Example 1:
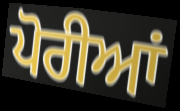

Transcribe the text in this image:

ਪੋਰੀਆਂ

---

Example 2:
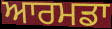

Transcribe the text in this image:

ਆਰਮਡਾ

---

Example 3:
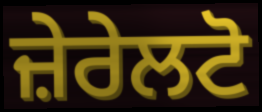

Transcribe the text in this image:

ਜ਼ੇਰੇਲਟੋ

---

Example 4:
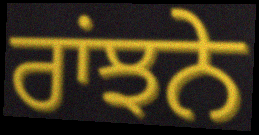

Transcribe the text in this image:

ਰਾਂਝਨੇ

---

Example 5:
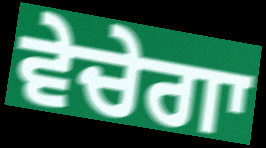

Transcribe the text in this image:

ਵੇਚੇਗਾ